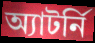
অ্যাটর্নি